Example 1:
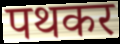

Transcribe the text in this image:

पथकर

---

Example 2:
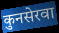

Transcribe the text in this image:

कुनसेरवा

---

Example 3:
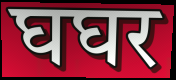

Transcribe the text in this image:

घघर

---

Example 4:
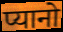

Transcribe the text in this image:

प्यानो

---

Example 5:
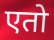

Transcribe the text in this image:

एतो